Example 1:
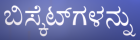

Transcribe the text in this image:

ಬಿಸ್ಕೆಟ್‌ಗಳನ್ನು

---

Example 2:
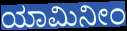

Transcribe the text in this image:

ಯಾಮಿನೀಂ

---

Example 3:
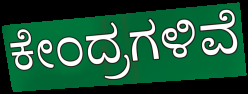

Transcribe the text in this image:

ಕೇಂದ್ರಗಳಿವೆ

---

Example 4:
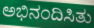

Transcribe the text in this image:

ಅಭಿನಂದಿಸಿತು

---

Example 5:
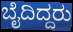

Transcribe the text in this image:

ಬೈದಿದ್ದರು